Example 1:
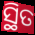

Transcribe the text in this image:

ସ୍ଥିତ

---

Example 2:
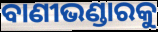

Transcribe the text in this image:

ବାଣୀଭଣ୍ଡାରକୁ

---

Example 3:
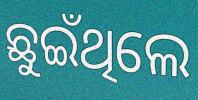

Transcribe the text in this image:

ଛୁଇଁଥିଲେ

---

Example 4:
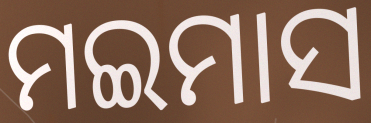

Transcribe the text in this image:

ମଇମାସ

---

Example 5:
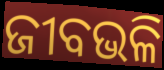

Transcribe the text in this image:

ଜୀବଭଳି